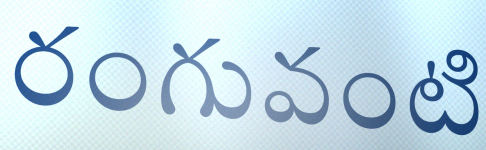
రంగువంటి